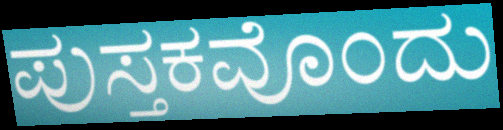
ಪುಸ್ತಕವೊಂದು